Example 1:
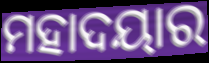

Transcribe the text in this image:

ମହାଦୟାର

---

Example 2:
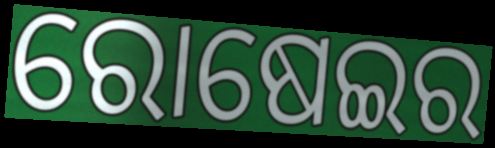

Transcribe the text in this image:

ରୋଷେଇର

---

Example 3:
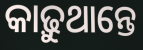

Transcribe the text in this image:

କାଢ଼ୁଥାନ୍ତେ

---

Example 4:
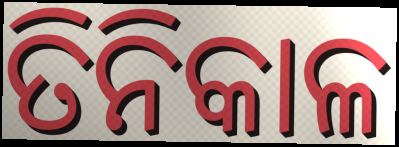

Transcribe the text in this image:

ତିନିକାଳ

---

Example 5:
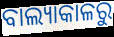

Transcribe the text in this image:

ବାଲ୍ୟାକାଳରୁ